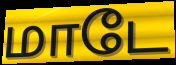
மாடே